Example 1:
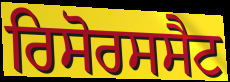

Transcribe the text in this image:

ਰਿਸੋਰਸਸੈਟ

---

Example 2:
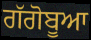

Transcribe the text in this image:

ਗੱਗੋਬੂਆ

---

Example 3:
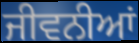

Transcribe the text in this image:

ਜੀਵਨੀਆਂ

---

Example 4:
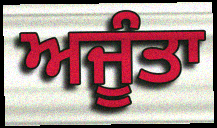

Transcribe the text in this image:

ਅਜੂੰਤਾ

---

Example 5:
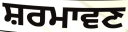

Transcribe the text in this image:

ਸ਼ਰਮਾਵਣ